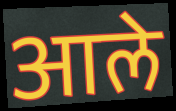
आले